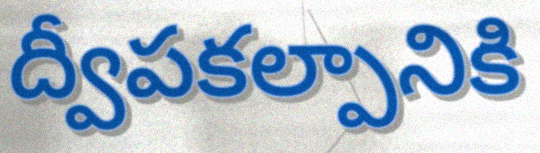
ద్వీపకల్పానికి